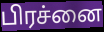
பிரச்னை